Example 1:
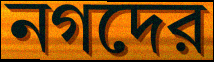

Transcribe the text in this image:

নগদের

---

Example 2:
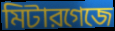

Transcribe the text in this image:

মিটারগেজে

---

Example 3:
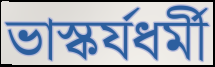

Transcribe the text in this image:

ভাস্কর্যধর্মী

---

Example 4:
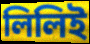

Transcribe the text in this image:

লিলিই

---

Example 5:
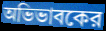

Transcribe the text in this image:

অভিভাবকের